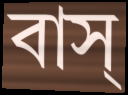
বাস্